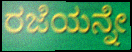
ರಜೆಯನ್ನೇ